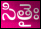
సితైః